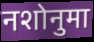
नशोनुमा